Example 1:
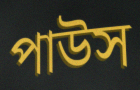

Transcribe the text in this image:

পাউস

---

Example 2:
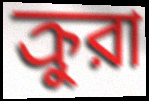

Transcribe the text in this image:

ক্রুরা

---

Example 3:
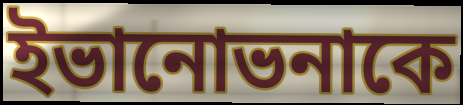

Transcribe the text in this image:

ইভানোভনাকে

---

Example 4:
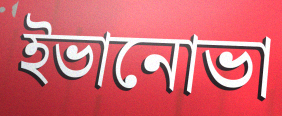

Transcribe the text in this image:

ইভানোভা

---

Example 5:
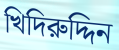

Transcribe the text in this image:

খিদিরুদ্দিন